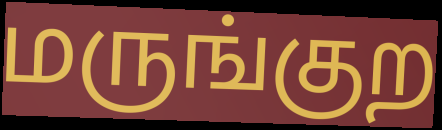
மருங்குற